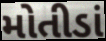
મોતીડાં